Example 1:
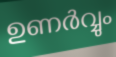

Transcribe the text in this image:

ഉണർവ്വും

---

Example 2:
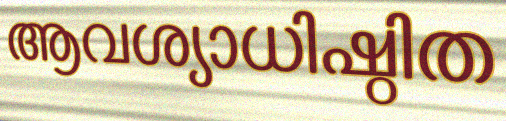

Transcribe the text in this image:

ആവശ്യാധിഷ്ഠിത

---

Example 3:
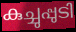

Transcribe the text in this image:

കുച്ചുപ്പുടി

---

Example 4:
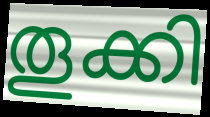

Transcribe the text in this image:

തൂക്കി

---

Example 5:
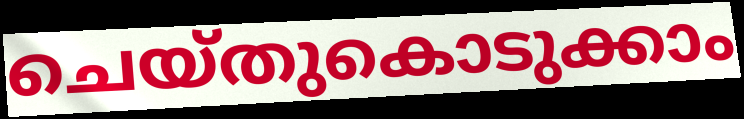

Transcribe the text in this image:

ചെയ്തുകൊടുക്കാം